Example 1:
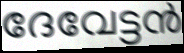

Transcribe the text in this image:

ദേവേട്ടൻ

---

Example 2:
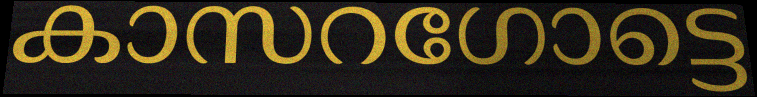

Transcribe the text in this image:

കാസറഗോട്ടെ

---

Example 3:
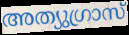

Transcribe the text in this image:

അത്യുഗ്രാസ്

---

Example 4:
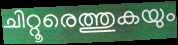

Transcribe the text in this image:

ചിറ്റൂരെത്തുകയും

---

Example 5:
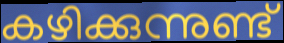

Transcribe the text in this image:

കഴിക്കുന്നുണ്ട്